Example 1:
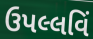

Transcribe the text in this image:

ઉપલ્લવિં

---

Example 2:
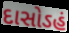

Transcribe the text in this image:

દાસોઽહં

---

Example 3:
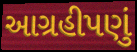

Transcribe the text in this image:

આગ્રહીપણું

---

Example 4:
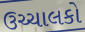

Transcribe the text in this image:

ઉચ્ચાલકો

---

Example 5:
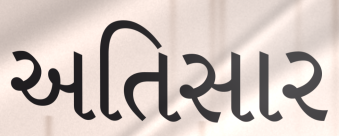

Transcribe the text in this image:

અતિસાર